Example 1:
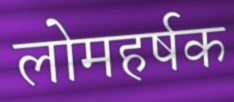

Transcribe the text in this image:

लोमहर्षक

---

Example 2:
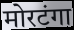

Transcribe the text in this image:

मोरटंगा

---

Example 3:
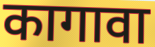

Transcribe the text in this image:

कागावा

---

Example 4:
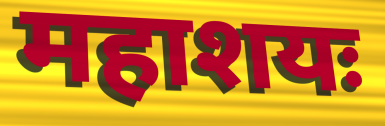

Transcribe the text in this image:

महाशयः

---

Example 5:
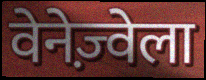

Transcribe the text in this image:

वेनेज़्वेला